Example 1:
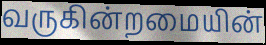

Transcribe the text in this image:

வருகின்றமையின்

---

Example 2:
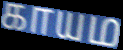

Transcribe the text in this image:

காயம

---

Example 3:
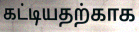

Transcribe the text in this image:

கட்டியதற்காக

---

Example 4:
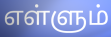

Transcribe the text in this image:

எள்ளும்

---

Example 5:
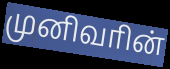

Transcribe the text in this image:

முனிவரின்